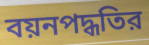
বয়নপদ্ধতির